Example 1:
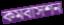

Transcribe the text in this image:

কমবাসশন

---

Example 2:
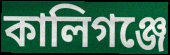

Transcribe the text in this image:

কালিগঞ্জে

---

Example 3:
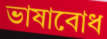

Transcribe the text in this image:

ভাষাবোধ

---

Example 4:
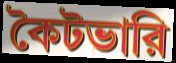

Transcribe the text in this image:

কৈটভারি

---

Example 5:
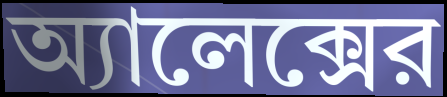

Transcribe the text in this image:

অ্যালেক্সের